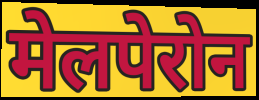
मेलपेरोन